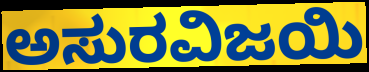
ಅಸುರವಿಜಯಿ